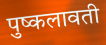
पुष्कलावती